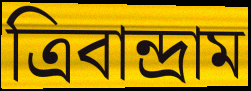
ত্রিবান্দ্রাম